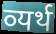
व्‍यर्थ